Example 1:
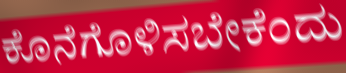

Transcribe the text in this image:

ಕೊನೆಗೊಳಿಸಬೇಕೆಂದು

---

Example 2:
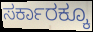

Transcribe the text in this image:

ಸರ್ಕಾರಕ್ಕೂ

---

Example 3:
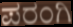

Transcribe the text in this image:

ಪರಂಗಿ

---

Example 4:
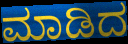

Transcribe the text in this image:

ಮಾಡಿದ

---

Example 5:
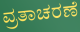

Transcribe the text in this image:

ವ್ರತಾಚರಣೆ